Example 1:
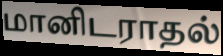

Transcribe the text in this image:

மானிடராதல்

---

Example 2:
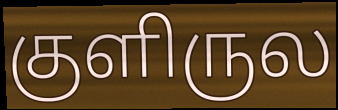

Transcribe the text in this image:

குளிருல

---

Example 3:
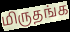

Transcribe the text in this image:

மிருதங்க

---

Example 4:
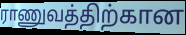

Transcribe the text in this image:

ராணுவத்திற்கான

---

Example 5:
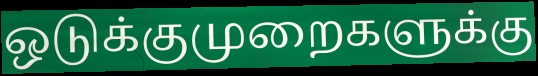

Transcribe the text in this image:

ஒடுக்குமுறைகளுக்கு